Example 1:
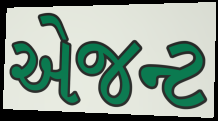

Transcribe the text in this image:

એજન્ટ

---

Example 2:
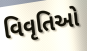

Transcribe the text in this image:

વિવૃતિઓ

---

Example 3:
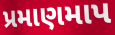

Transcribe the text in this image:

પ્રમાણમાપ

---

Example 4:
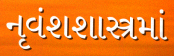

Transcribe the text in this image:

નૃવંશશાસ્ત્રમાં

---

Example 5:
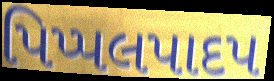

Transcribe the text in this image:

પિપ્પલપાદપ